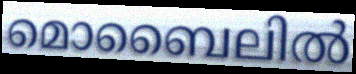
മൊബൈലിൽ